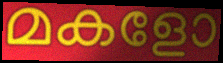
മകളോ